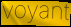
voyant